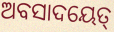
ଅବସାଦୟେତ୍